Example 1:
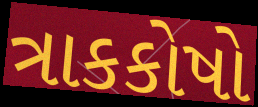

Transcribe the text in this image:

ત્રાકકોષો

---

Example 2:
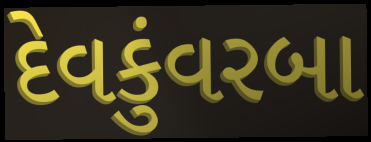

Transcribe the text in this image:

દેવકુંવરબા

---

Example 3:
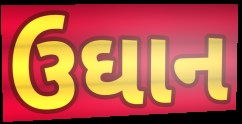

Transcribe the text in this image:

ઉઘાન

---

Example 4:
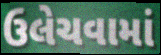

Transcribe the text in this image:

ઉલેચવામાં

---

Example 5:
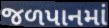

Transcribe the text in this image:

જળપાનમાં